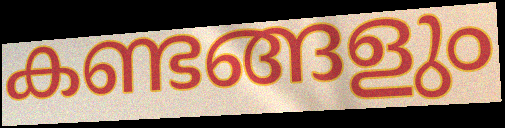
കണ്ടങ്ങളും